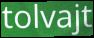
tolvajt